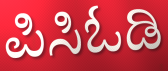
ಪಿಸಿಓಡಿ